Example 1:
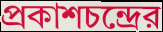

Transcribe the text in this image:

প্রকাশচন্দ্রের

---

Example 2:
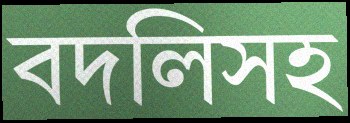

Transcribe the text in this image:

বদলিসহ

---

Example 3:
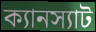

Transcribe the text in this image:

ক্যানস্যাট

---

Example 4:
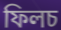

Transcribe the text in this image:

ফিলচ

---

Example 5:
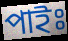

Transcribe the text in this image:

পাইঃ